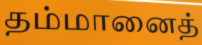
தம்மானைத்